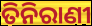
ତିନିରାଣୀ